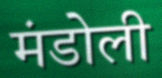
मंडोली